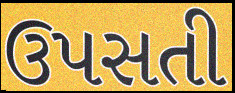
ઉપસતી